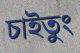
চাইতুং